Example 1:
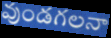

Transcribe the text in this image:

వుండగలనా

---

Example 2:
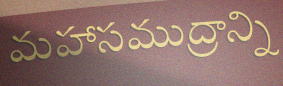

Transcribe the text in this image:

మహాసముద్రాన్ని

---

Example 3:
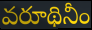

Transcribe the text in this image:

వరూథినీం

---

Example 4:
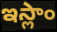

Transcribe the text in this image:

ఇస్లాం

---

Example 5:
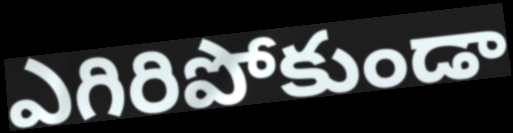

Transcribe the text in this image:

ఎగిరిపోకుండా